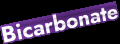
Bicarbonate